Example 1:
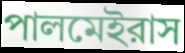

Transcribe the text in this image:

পালমেইরাস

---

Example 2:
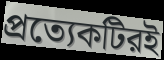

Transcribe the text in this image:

প্রত্যেকটিরই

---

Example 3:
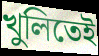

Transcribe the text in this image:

খুলিতেই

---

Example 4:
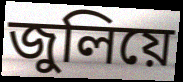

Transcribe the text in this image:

জুলিয়ে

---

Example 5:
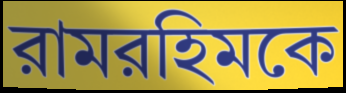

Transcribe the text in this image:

রামরহিমকে